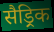
सैड्रिक